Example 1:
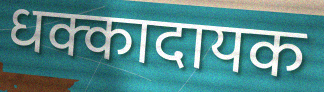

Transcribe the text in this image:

धक्‍कादायक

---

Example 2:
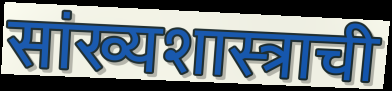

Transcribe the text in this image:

सांख्यशास्त्राची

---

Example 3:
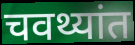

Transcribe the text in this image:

चवथ्यांत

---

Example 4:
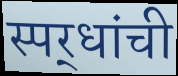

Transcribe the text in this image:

स्पर्धांची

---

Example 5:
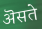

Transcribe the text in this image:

ऄसते